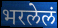
भरलेलं